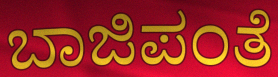
ಬಾಜಿಪಂತೆ